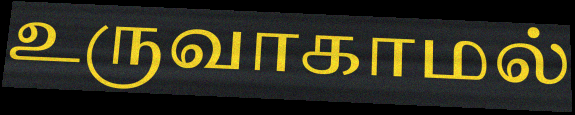
உருவாகாமல்